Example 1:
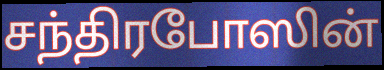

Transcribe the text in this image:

சந்திரபோஸின்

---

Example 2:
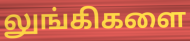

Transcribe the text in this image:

லுங்கிகளை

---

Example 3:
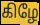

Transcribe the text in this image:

கிழே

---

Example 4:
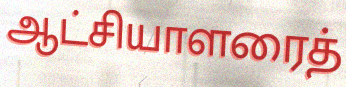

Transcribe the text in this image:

ஆட்சியாளரைத்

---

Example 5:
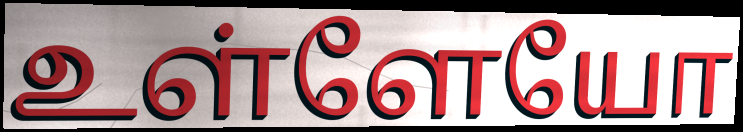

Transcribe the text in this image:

உள்ளேயோ